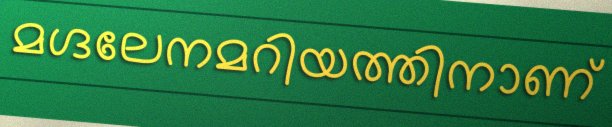
മഗ്ദലേനമറിയത്തിനാണ്